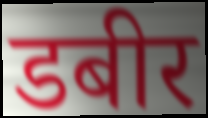
डबीर